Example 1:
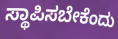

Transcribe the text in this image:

ಸ್ಥಾಪಿಸಬೇಕೆಂದು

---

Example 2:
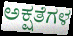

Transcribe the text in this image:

ಅಕ್ಷತೆಗಳ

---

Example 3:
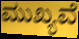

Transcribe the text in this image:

ಮುಖ್ಯವೆ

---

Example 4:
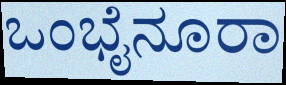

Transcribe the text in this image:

ಒಂಭೈನೂರಾ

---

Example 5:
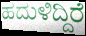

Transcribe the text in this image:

ಹದುಳಿದ್ದಿರೆ